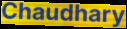
Chaudhary